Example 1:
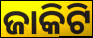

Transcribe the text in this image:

ଜାକିଟି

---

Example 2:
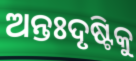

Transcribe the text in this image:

ଅନ୍ତଃଦୃଷ୍ଟିକୁ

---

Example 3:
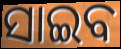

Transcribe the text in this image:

ସାଇବ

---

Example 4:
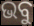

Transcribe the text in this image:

ଭବୁ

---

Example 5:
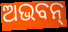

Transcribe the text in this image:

ଅଭବନ୍